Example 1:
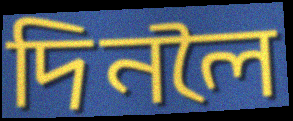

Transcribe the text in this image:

দিনলৈ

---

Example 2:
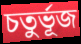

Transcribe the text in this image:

চতুৰ্ভূজ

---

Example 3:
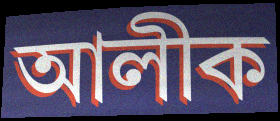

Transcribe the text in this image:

আলীক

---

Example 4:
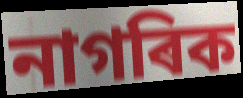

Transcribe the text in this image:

নাগৰিক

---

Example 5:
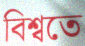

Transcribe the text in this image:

বিশ্বতে